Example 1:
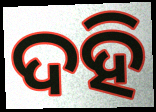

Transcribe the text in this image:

ଦହି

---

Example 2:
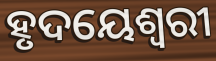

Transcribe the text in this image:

ହୃଦୟେଶ୍ୱରୀ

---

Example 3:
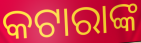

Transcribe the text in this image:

କଟାରାଙ୍କ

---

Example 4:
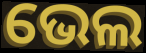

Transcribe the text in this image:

ଭେଲ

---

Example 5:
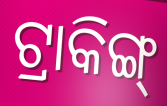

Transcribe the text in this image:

ଟ୍ରାକିଙ୍ଗ୍